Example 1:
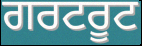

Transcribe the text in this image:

ਗਰਟਰੂਟ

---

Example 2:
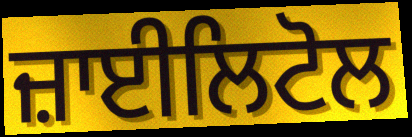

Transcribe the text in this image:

ਜ਼ਾਈਲਿਟੋਲ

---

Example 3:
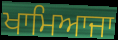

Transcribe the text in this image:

ਖਾਮਿਆਜਾ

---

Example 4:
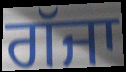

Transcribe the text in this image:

ਗੱਜਾ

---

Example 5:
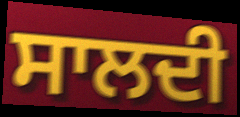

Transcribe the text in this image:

ਸਾਲਦੀ